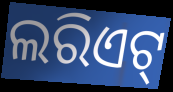
ଲରିଏଟ୍